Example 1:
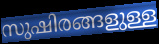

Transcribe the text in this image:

സുഷിരങ്ങളുള്ള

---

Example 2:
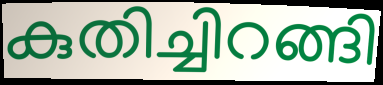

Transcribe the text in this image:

കുതിച്ചിറങ്ങി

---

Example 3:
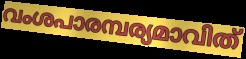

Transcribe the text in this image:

വംശപാരമ്പര്യമാവിത്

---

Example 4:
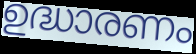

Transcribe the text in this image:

ഉദ്ധാരണം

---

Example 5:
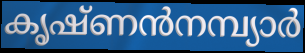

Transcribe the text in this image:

കൃഷ്ണൻനമ്പ്യാർ